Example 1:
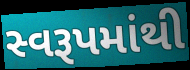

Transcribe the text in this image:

સ્વરૂપમાંથી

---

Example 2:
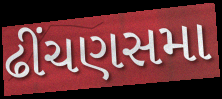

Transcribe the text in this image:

ઢીંચણસમા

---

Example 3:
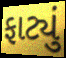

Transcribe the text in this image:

ફાટ્યું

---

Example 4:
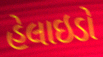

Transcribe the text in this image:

હેલાઇડો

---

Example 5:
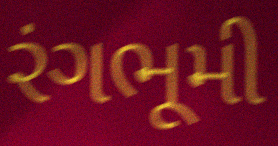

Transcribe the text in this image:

રંગભૂમી